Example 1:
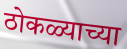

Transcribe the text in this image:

ठोकळ्याच्या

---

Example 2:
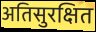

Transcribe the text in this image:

अतिसुरक्षित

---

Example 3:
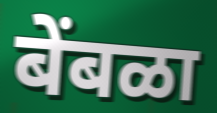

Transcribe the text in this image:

बेंबळा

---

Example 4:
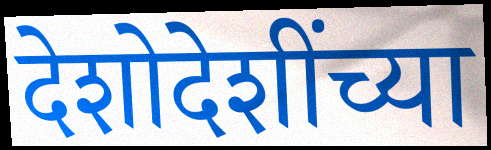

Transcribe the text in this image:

देशोदेशींच्या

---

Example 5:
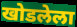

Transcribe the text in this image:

खोडलेला